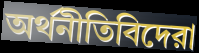
অর্থনীতিবিদেরা